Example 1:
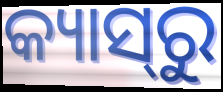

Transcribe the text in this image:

କ୍ୟାସ୍‌ରୁ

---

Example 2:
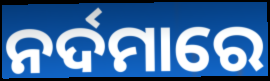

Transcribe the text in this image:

ନର୍ଦମାରେ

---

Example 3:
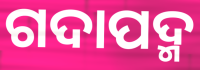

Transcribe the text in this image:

ଗଦାପଦ୍ମ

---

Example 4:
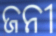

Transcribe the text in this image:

ଜନୀ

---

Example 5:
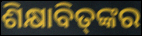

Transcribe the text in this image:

ଶିକ୍ଷାବିତ୍‌ଙ୍କର